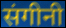
संगीनी